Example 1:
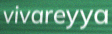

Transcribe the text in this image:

vivareyya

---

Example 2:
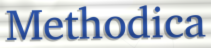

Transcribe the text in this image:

Methodica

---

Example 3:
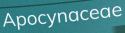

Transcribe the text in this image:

Apocynaceae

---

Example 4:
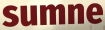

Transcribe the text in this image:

sumne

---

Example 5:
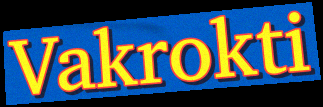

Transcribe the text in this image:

Vakrokti